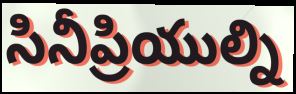
సినీప్రియుల్ని